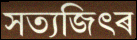
সত্যজিৎৰ